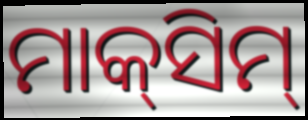
ମାକ୍‍ସିମ୍